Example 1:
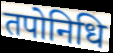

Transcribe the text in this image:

तपोनिधि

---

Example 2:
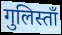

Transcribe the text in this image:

गुलिस्ताँ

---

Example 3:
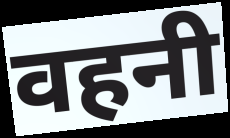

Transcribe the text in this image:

वहनी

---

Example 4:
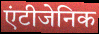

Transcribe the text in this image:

एंटीजेनिक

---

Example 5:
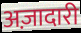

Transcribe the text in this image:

अज़ादारी